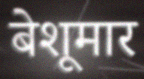
बेशूमार